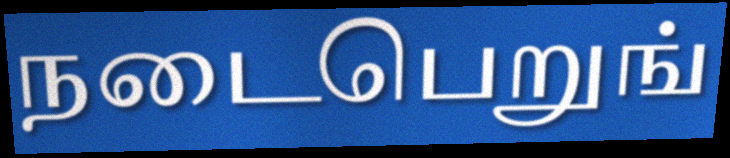
நடைபெறுங்